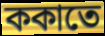
ককাতে